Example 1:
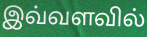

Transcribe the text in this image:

இவ்வளவில்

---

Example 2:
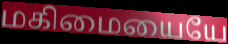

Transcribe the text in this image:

மகிமையையே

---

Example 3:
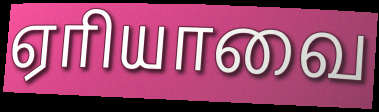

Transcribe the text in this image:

ஏரியாவை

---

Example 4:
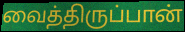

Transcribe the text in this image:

வைத்திருப்பான்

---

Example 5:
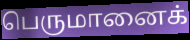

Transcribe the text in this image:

பெருமானைக்